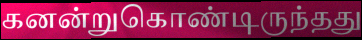
கனன்றுகொண்டிருந்தது